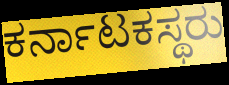
ಕರ್ನಾಟಕಸ್ಥರು